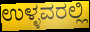
ಉಳ್ಳವರಲ್ಲಿ